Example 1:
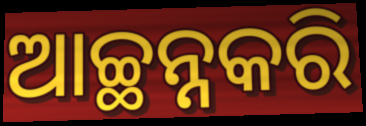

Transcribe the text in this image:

ଆଚ୍ଛନ୍ନକରି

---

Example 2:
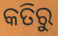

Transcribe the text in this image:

କତିରୁ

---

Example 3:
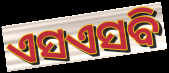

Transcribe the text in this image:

ଏସଏସବି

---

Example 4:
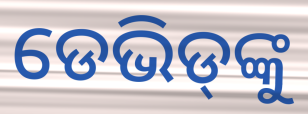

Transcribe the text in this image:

ଡେଭିଡ୍‌ଙ୍କୁ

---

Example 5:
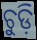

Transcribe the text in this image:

ଚୁଡ଼ି